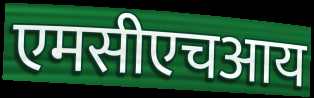
एमसीएचआय